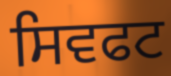
ਸਿਵਫਟ